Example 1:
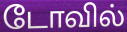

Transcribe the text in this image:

டோவில்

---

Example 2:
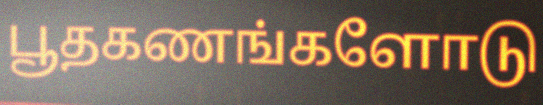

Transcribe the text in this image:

பூதகணங்களோடு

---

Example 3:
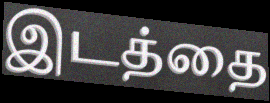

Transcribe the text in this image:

இடத்தை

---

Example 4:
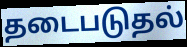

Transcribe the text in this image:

தடைபடுதல்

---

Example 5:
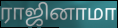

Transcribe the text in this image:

ராஜினாமா